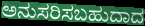
ಅನುಸರಿಸಬಹುದಾದ